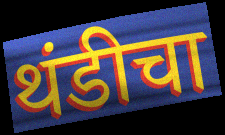
थंडीचा